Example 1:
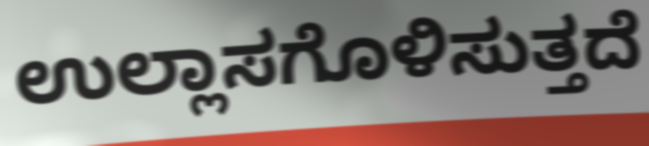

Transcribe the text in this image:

ಉಲ್ಲಾಸಗೊಳಿಸುತ್ತದೆ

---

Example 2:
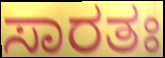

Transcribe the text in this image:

ಸಾರತಃ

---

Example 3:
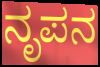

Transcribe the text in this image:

ನೃಪನ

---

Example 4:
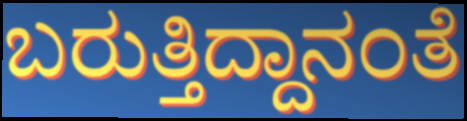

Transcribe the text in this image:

ಬರುತ್ತಿದ್ದಾನಂತೆ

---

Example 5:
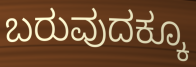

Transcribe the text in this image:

ಬರುವುದಕ್ಕೂ